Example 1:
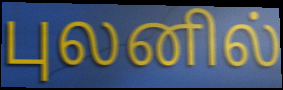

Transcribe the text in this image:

புலனில்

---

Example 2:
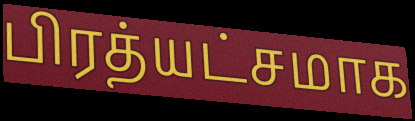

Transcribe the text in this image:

பிரத்யட்சமாக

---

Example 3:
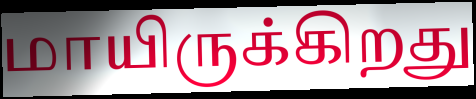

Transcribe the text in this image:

மாயிருக்கிறது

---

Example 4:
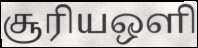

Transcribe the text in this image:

சூரியஒளி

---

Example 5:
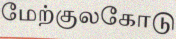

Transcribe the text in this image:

மேற்குலகோடு